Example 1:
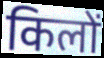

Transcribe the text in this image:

किलों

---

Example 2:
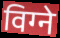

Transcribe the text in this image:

विग्ने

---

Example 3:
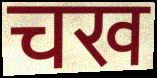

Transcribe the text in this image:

चख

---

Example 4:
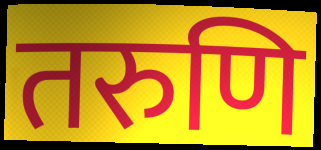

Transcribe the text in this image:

तरुणि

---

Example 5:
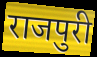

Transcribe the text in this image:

राजपुरी